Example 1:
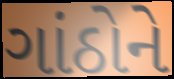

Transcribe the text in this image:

ગાંઠોને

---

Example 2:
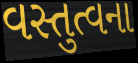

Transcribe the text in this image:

વસ્તુત્વના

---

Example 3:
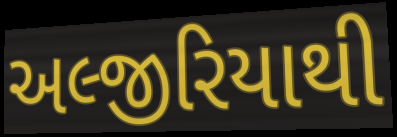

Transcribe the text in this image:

અલ્જીરિયાથી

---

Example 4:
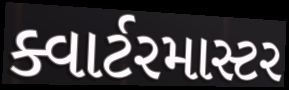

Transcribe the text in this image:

ક્વાર્ટરમાસ્ટર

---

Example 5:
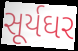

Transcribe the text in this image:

સૂર્યઘર